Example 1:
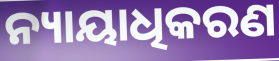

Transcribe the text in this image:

ନ୍ୟାୟାଧିକରଣ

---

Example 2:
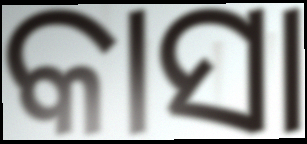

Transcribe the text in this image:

କାସା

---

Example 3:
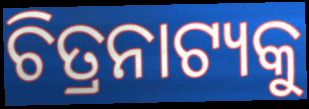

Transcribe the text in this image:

ଚିତ୍ରନାଟ୍ୟକୁ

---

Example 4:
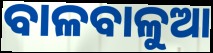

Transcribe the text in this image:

ବାଳବାଳୁଆ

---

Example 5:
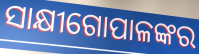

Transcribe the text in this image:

ସାକ୍ଷୀଗୋପାଳଙ୍କର